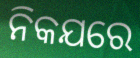
ନିକଯରେ